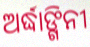
ଅର୍ଦ୍ଧାଙ୍ଗିନୀ